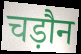
चड़ौन